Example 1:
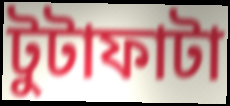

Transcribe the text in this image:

টুটাফাটা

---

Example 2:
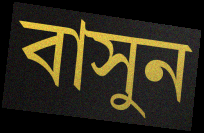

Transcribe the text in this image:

বাসুন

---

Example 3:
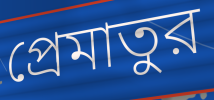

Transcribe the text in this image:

প্রেমাতুর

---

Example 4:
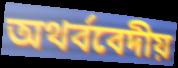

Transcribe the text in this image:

অথর্ববেদীয়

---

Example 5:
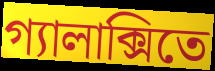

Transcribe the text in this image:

গ্যালাক্সিতে